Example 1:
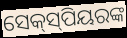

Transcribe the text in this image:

ସେକ୍‌ସ୍‌ପିୟରଙ୍କ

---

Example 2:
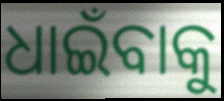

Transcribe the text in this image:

ଧାଇଁବାକୁ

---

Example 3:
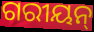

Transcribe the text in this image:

ଗରୀୟନ୍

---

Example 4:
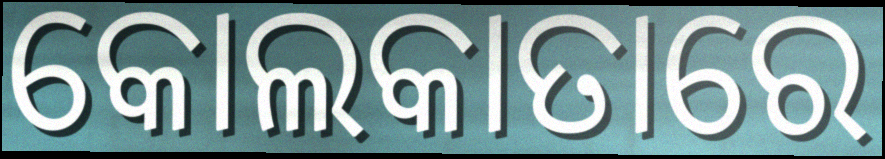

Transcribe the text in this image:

କୋଲକାତାରେ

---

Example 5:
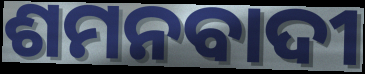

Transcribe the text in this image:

ଶମନବାଦୀ